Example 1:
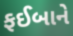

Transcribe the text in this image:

ફઈબાને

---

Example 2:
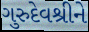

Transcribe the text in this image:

ગુરુદેવશ્રીને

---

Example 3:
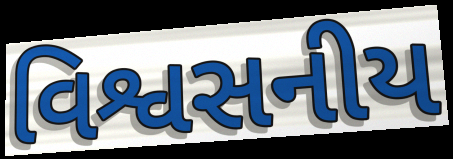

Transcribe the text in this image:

વિશ્વસનીય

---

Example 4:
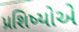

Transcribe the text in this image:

પ્રશિષ્યોએ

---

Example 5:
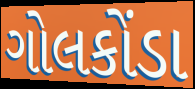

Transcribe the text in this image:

ગોલકોંડા